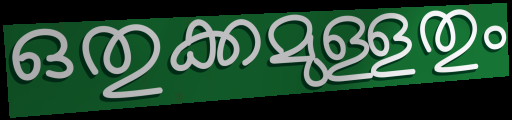
ഒതുക്കമുള്ളതും